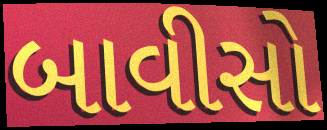
બાવીસો